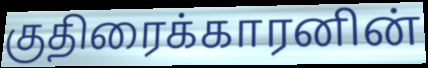
குதிரைக்காரனின்